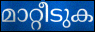
മാറ്റീടുക